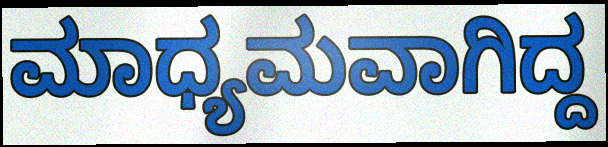
ಮಾಧ್ಯಮವಾಗಿದ್ದ